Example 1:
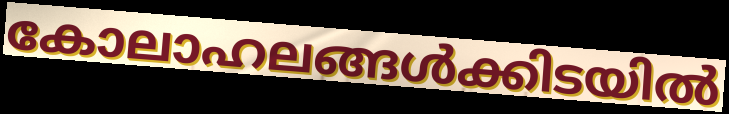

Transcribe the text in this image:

കോലാഹലങ്ങൾക്കിടയിൽ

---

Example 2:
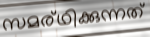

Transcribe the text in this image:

സമര്ഥിക്കുന്നത്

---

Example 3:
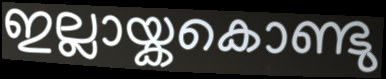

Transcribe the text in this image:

ഇല്ലായ്കകൊണ്ടു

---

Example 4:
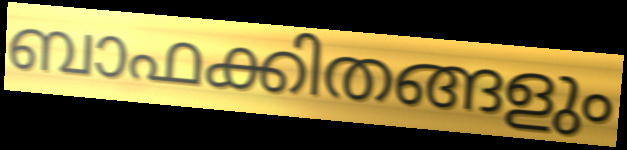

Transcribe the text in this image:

ബാഫക്കിതങ്ങളും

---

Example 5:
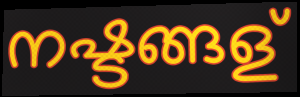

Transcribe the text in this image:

നഷ്ടങ്ങള്